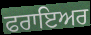
ਫਰਾਇਅਰ